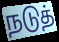
நடுத்